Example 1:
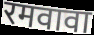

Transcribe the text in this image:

रमवावा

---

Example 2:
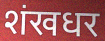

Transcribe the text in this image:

शंखधर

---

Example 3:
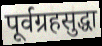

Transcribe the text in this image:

पूर्वग्रहसुद्धा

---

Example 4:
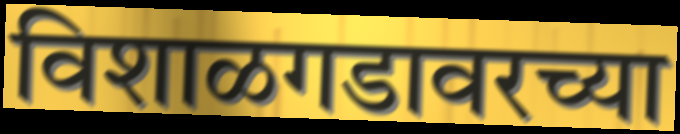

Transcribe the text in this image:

विशाळगडावरच्या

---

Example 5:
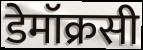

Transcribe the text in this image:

डेमॉक्रसी